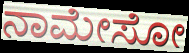
ನಾಮೇಸೋ